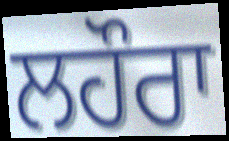
ਲਹੌਰਾ